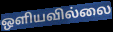
ஒளியவில்லை